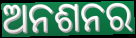
ଅନଶନର